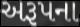
અરૂપના